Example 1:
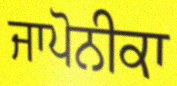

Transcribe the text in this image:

ਜਾਪੋਨੀਕਾ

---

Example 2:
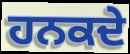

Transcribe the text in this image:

ਹਨਕਦੇ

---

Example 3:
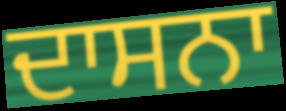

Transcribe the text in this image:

ਦਾਸਨਾ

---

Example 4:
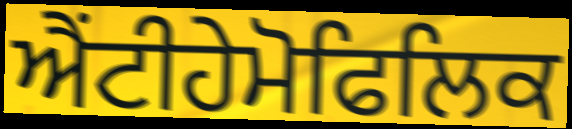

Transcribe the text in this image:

ਐਂਟੀਹੇਮੋਫਿਲਿਕ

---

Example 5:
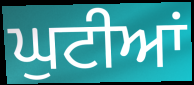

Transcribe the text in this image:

ਘੁਟੀਆਂ